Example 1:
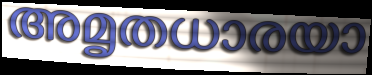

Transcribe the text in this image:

അമൃതധാരയാ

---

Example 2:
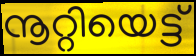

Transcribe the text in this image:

നൂറ്റിയെട്ട്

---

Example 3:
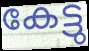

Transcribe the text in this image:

കേട്ടു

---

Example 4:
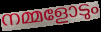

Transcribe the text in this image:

നമ്മളോടും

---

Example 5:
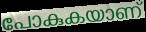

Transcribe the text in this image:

പോകുകയാണ്